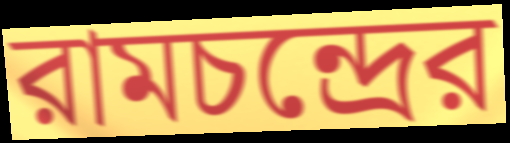
রামচন্দ্রের